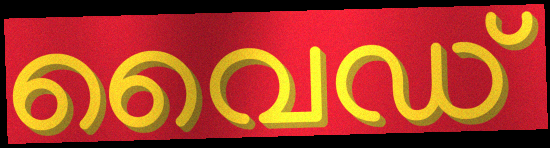
വൈഡ്